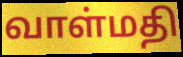
வாள்மதி